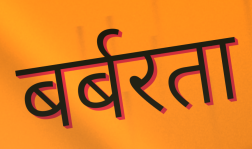
बर्बरता